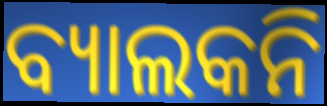
ବ୍ୟାଲକନି